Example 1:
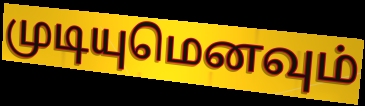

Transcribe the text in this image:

முடியுமெனவும்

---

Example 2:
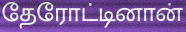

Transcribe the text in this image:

தேரோட்டினான்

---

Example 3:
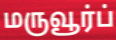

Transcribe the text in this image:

மருவூர்ப்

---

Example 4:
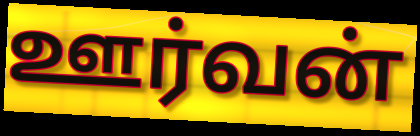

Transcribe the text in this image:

ஊர்வன்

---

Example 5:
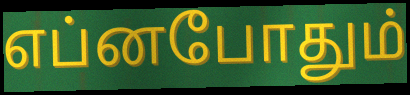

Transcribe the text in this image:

எப்னபோதும்